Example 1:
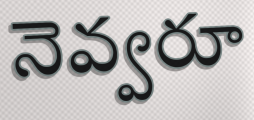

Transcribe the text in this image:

నెవ్వరూ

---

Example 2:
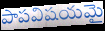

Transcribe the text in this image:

పాపవిషయమై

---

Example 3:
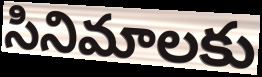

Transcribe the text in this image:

సినిమాలకు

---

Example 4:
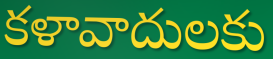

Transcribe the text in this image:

కళావాదులకు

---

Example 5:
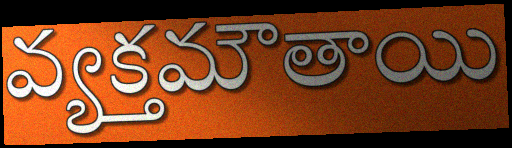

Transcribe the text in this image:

వ్యక్తమౌతాయి